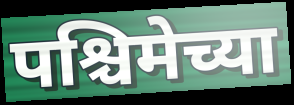
पश्चिमेच्या